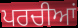
ਪਰਚੀਆਂ